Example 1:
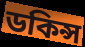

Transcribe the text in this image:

ডকিন্স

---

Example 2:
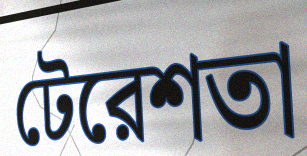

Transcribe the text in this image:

টেরেশতা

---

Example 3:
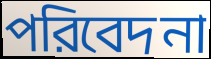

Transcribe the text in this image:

পরিবেদনা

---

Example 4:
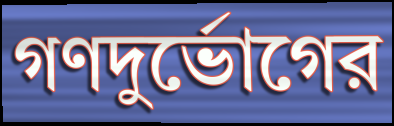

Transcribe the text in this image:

গণদুর্ভোগের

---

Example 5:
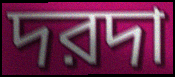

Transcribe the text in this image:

দরদা